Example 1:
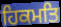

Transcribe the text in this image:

ਹਿਕਮਤਿ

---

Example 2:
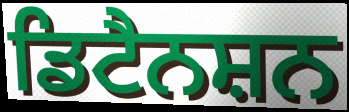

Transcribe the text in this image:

ਡਿਟੈਨਸ਼ਨ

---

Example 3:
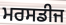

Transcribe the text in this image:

ਮਰਸਡੀਜ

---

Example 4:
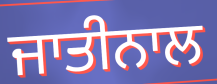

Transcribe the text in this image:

ਜਾਤੀਨਾਲ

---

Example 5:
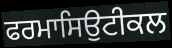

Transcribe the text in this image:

ਫਰਮਾਸਿਉਟੀਕਲ